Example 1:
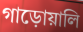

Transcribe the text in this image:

গাড়োয়ালি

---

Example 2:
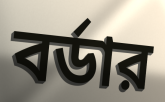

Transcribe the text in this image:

বর্ডার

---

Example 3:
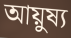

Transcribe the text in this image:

আয়ুষ্য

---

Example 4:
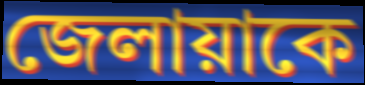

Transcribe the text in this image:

জেলায়াকে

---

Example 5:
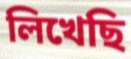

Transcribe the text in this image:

লিখেছি